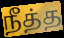
நீத்த